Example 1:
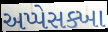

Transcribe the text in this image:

અપ્પેસક્ખા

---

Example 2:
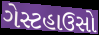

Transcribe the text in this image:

ગેસ્ટહાઉસો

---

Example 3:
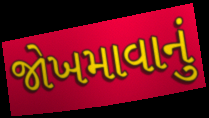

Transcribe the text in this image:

જોખમાવાનું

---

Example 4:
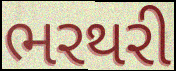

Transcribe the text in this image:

ભરથરી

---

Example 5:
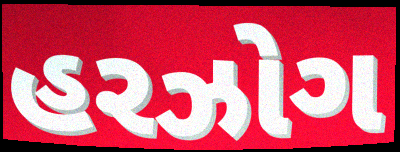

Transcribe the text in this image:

હરઝોગ